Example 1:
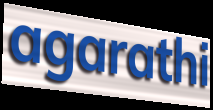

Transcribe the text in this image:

agarathi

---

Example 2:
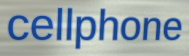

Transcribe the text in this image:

cellphone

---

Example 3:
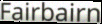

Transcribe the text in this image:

Fairbairn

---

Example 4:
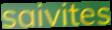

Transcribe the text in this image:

saivites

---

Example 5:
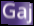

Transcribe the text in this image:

Gaj